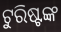
ଟୁରିଷ୍ଟଙ୍କ